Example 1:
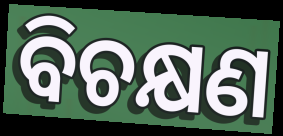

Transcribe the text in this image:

ବିଚକ୍ଷଣ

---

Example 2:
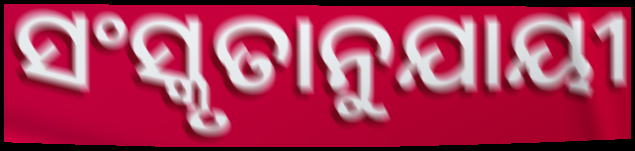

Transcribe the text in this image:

ସଂସ୍କୃତାନୁଯାୟୀ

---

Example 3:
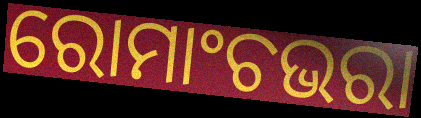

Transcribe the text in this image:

ରୋମାଂଚଭରା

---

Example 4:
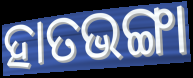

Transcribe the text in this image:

ହାତଭଙ୍ଗା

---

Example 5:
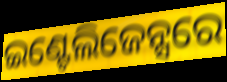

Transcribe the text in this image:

ଇଣ୍ଟେଲିଜେନ୍ସରେ